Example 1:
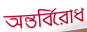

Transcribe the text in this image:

অন্তর্বিরোধ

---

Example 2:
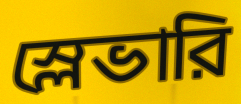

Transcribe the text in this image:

স্লেভারি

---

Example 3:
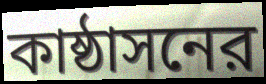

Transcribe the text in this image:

কাষ্ঠাসনের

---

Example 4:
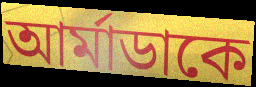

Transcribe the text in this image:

আর্মাডাকে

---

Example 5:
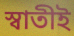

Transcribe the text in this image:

স্বাতীই